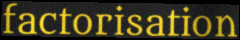
factorisation